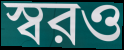
স্বরও